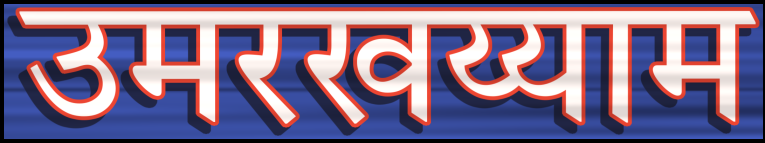
उमरखय्याम